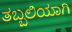
ತಬ್ಬಲಿಯಾಗಿ